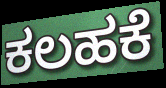
ಕಲಹಕೆ